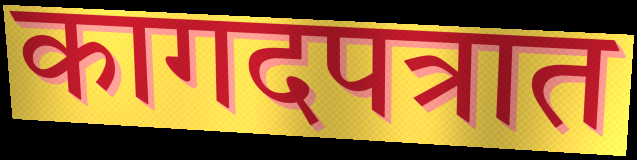
कागदपत्रात